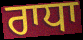
ਰਾਧਾ